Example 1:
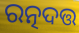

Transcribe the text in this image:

ରତ୍ନଦତ୍ତ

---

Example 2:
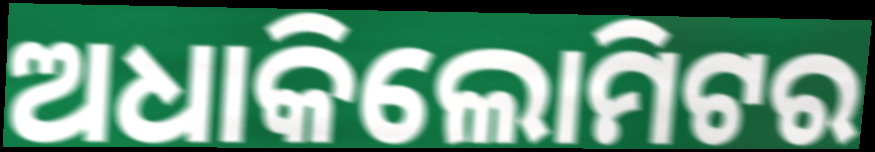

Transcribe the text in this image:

ଅଧାକିଲୋମିଟର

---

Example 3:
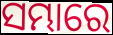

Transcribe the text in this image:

ସମ୍ଭାରେ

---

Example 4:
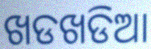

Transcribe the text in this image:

ଖଡଖଡିଆ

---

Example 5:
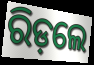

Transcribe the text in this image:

ରିଡ଼ଲେ